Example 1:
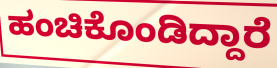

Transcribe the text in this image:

ಹಂಚಿಕೊಂಡಿದ್ದಾರೆ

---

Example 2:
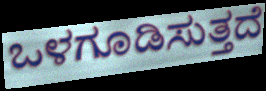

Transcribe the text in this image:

ಒಳಗೂಡಿಸುತ್ತದೆ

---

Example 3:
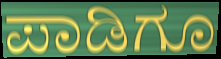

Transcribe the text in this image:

ಪಾಡಿಗೂ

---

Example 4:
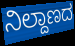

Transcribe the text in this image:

ನಿಲ್ದಾಣದ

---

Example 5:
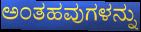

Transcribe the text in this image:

ಅಂತಹವುಗಳನ್ನು